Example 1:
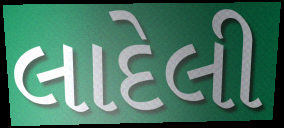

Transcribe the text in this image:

લાદેલી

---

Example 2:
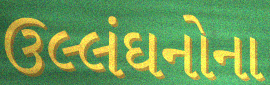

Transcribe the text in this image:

ઉલ્લંઘનોના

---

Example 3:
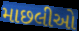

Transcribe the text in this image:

માછલીઓ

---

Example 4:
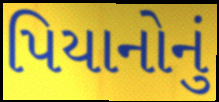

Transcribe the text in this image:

પિયાનોનું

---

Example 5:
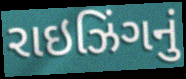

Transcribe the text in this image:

રાઇઝિંગનું